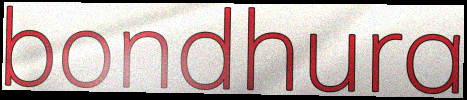
bondhura